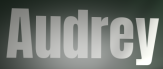
Audrey